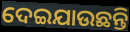
ଦେଇଯାଉଛନ୍ତି